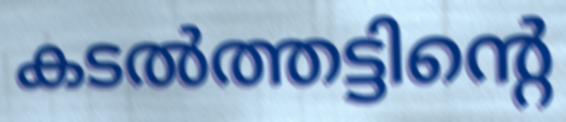
കടൽത്തട്ടിന്റെ